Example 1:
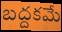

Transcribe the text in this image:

బద్దకమే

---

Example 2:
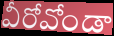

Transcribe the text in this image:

వీరోవోండా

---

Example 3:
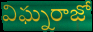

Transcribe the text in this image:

విఘ్నరాజో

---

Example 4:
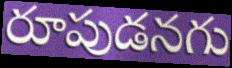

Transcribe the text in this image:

రూపుడనగు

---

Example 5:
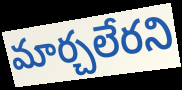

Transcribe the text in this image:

మార్చలేరని